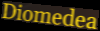
Diomedea